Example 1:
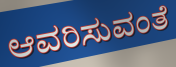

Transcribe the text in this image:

ಆವರಿಸುವಂತೆ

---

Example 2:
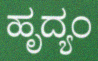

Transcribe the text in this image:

ಹೃದ್ಯಂ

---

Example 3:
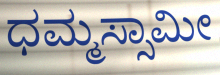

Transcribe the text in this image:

ಧಮ್ಮಸ್ಸಾಮೀ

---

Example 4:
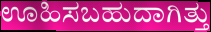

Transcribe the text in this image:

ಊಹಿಸಬಹುದಾಗಿತ್ತು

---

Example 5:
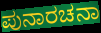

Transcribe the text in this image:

ಪುನಾರಚನಾ